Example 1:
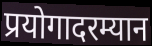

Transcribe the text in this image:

प्रयोगादरम्यान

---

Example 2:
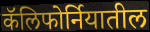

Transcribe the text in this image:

कॅलिफोर्नियातील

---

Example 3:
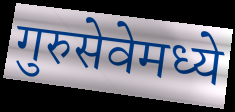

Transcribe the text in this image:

गुरुसेवेमध्ये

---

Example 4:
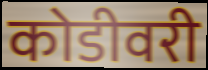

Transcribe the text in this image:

कोडीवरी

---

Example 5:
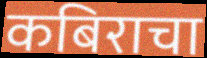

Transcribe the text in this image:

कबिराचा